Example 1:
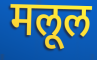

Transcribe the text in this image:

मलूल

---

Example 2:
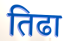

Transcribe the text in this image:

तिढा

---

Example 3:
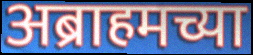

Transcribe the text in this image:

अब्राहमच्या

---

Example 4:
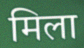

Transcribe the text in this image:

मिला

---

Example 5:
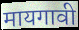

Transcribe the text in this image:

मायगावी